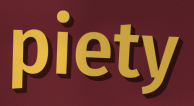
piety